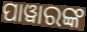
ପାୱାରଙ୍କ